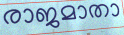
രാജമാതാ